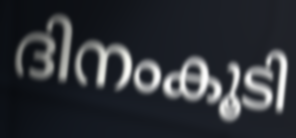
ദിനംകൂടി